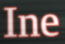
Ine